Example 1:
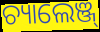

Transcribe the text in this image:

ଚ୍ୟାଲେଞ୍ଜ୍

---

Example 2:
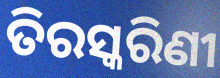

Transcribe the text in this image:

ତିରସ୍କରିଣୀ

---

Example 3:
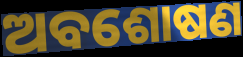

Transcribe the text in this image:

ଅବଶୋଷଣ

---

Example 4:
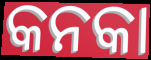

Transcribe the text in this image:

କନକା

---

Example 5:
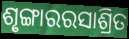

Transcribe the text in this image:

ଶୃଙ୍ଗାରରସାଶ୍ରିତ